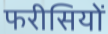
फरीसियों